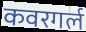
कवरगर्ल